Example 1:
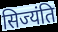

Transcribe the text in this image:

सिज्यंति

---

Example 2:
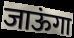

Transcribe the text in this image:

जाऊंगा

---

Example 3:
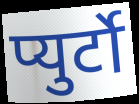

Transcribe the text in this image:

प्युर्टो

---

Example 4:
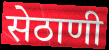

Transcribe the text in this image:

सेठाणी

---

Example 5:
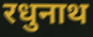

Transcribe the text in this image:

रधुनाथ